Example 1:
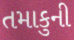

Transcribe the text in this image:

તમાકુની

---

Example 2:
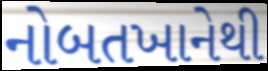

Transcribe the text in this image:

નોબતખાનેથી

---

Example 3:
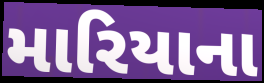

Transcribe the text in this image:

મારિયાના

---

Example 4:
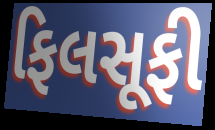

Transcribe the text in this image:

ફિલસૂફી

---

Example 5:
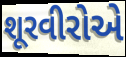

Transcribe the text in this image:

શૂરવીરોએ